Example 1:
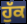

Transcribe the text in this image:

ਹੁੱਕ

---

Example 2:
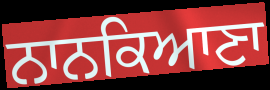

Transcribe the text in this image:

ਨਾਨਕਿਆਣਾ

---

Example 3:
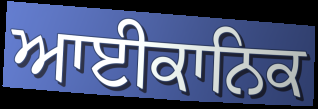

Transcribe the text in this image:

ਆਈਕਾਨਿਕ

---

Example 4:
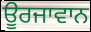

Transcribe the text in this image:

ਊਰਜਾਵਾਨ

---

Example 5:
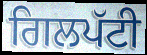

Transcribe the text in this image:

ਗਿਲਪੱਟੀ